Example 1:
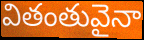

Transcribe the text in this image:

వితంతువైనా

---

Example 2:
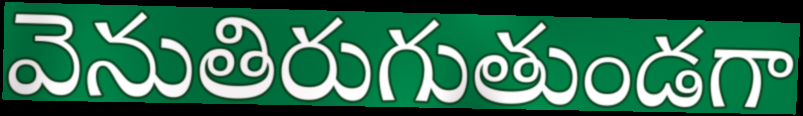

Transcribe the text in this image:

వెనుతిరుగుతుండగా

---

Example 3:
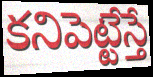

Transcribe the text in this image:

కనిపెట్టేస్తే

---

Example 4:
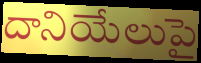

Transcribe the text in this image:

దానియేలుపై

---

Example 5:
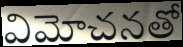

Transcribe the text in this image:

విమోచనతో